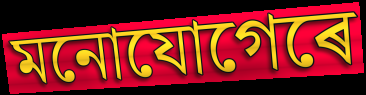
মনোযোগেৰে